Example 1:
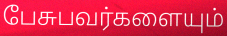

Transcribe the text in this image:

பேசுபவர்களையும்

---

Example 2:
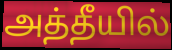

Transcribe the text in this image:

அத்தீயில்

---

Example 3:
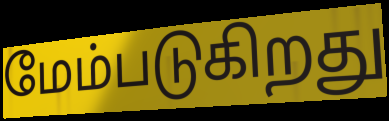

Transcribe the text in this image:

மேம்படுகிறது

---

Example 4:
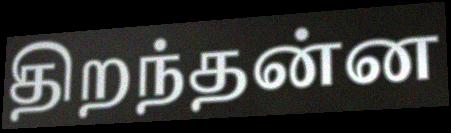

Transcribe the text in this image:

திறந்தன்ன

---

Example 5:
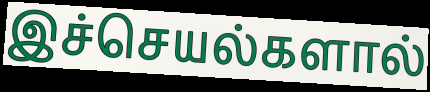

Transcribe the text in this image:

இச்செயல்களால்